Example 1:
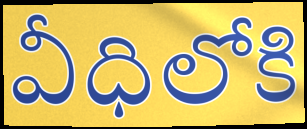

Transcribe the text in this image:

వీధిలోకి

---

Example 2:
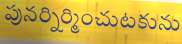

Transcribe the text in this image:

పునర్నిర్మించుటకును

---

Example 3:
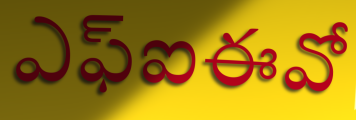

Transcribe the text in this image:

ఎఫ్ఐఈవో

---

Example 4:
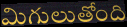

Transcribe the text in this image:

మిగులుతోంది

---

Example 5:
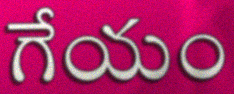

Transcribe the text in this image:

గేయం